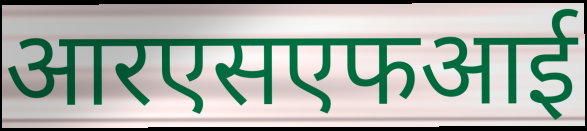
आरएसएफआई